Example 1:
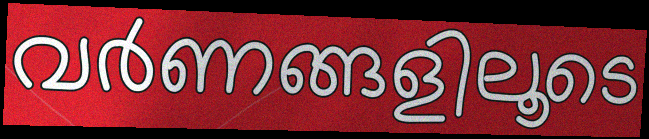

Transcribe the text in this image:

വർണങ്ങളിലൂടെ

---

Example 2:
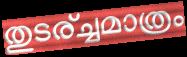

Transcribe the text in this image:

തുടര്ച്ചമാത്രം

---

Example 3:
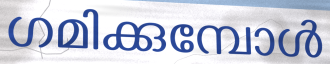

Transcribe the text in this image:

ഗമിക്കുമ്പോൾ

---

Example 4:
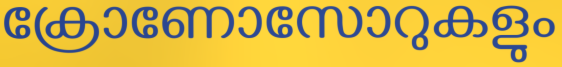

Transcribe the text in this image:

ക്രോണോസോറുകളും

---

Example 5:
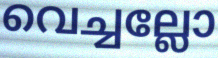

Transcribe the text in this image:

വെച്ചല്ലോ